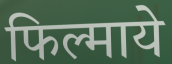
फिल्माये